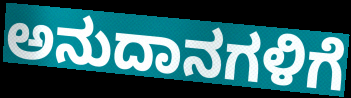
ಅನುದಾನಗಳಿಗೆ